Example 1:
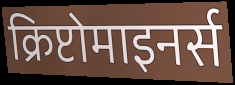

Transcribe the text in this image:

क्रिप्टोमाइनर्स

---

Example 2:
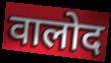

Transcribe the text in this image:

वालोद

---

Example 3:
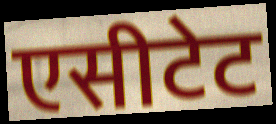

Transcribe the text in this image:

एसीटेट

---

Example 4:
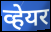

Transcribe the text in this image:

व्हेयर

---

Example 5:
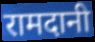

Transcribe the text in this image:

रामदानी